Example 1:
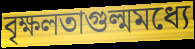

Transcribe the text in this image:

বৃক্ষলতাগুল্মমধ্যে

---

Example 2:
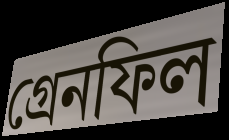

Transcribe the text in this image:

গ্রেনফিল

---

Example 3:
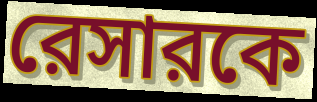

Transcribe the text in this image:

রেসারকে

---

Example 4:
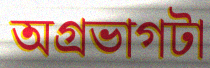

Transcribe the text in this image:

অগ্রভাগটা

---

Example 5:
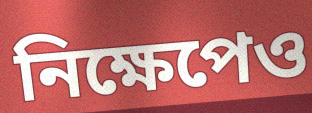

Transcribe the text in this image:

নিক্ষেপেও